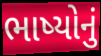
ભાષ્યોનું